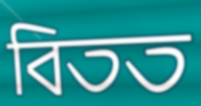
বিতত